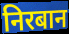
निरबान